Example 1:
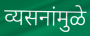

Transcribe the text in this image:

व्यसनांमुळे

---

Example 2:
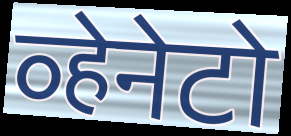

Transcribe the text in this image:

व्हेनेटो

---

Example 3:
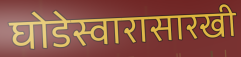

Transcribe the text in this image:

घोडेस्वारासारखी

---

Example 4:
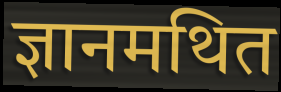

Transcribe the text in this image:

ज्ञानमथित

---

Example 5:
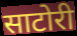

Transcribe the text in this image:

साटोरी